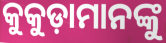
କୁକୁଡ଼ାମାନଙ୍କୁ